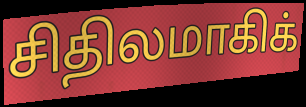
சிதிலமாகிக்